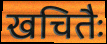
खचितैः